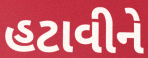
હટાવીને